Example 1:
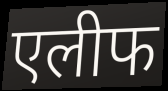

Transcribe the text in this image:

एलीफ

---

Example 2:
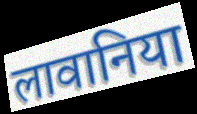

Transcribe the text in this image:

लावानिया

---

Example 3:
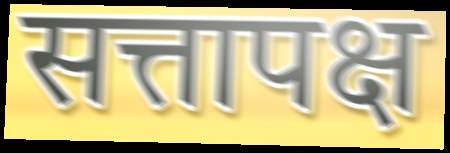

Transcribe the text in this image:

सत्तापक्ष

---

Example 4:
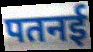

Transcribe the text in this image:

पतनई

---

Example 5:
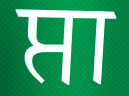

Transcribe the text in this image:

प्ता